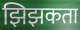
झिझकता